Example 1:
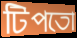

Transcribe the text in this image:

টিপতো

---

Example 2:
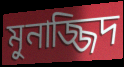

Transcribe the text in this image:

মুনাজ্জিদ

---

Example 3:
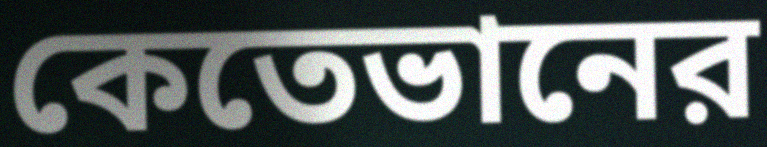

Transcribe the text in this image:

কেতেভানের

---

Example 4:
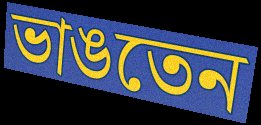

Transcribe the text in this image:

ভাঙতেন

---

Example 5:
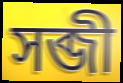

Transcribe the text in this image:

সব্জী